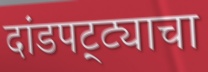
दांडपट्ट्याचा